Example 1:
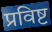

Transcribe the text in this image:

प्रविष्ट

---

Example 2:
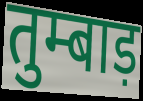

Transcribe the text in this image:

तुम्बाड़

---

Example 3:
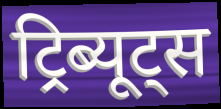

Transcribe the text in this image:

ट्रिब्यूट्स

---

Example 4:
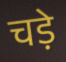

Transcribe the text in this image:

चड़े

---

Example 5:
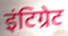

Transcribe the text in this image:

इंटिग्रेट